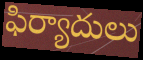
ఫిర్యాదులు